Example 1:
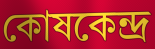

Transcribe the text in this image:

কোষকেন্দ্ৰ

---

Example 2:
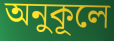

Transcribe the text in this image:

অনুকূলে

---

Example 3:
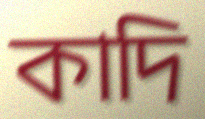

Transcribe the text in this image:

কাদি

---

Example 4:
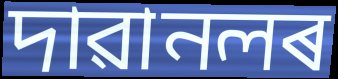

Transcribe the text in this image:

দাৱানলৰ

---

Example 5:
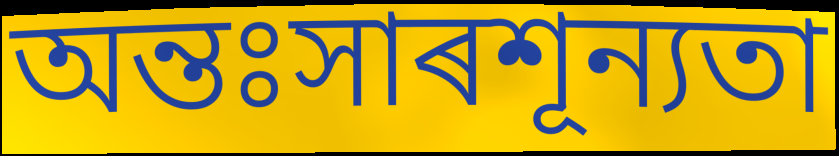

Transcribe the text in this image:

অন্তঃসাৰশূন্যতা